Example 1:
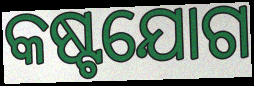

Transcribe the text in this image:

କଷ୍ଟଯୋଗ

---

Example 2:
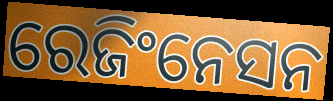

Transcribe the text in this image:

ରେଜିଂନେସନ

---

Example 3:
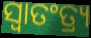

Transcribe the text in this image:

ସ୍ଵାତଂତ୍ର୍ୟ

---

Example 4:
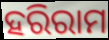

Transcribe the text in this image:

ହରିରାମ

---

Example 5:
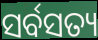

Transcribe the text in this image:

ସର୍ବସତ୍ୟ